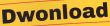
Dwonload